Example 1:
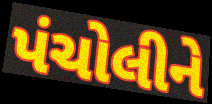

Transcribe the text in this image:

પંચોલીને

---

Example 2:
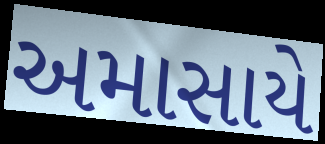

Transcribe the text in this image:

અમાસાયે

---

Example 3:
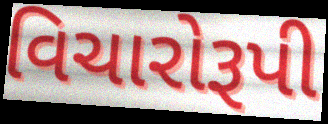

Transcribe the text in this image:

વિચારોરૂપી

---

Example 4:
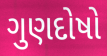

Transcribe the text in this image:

ગુણદોષો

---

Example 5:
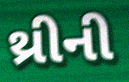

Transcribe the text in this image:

થ્રીની